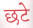
छटे